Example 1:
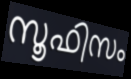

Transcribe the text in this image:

സൂഫിസം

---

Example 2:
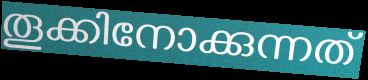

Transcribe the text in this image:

തൂക്കിനോക്കുന്നത്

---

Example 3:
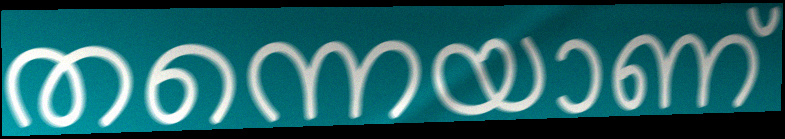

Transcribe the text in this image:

തന്നെയാണ്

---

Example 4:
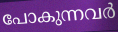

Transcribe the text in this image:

പോകുന്നവർ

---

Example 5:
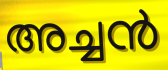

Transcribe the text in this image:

അച്ചൻ